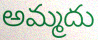
అమ్మదు